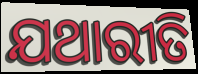
ଯଥାରୀତି